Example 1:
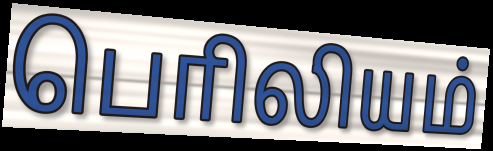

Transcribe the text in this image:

பெரிலியம்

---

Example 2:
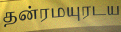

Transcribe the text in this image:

தன்ரமயுரடய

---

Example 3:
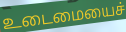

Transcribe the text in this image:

உடைமையைச்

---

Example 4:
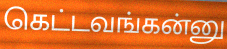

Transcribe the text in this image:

கெட்டவங்கன்னு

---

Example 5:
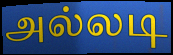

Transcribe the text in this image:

அல்லடி